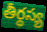
తీర్థస్య